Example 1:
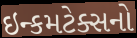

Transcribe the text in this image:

ઇન્કમટેક્સનો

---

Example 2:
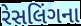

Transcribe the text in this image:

રેસલિંગના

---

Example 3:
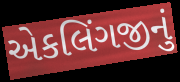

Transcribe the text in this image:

એકલિંગજીનું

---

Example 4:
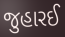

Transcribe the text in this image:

જુહારઈ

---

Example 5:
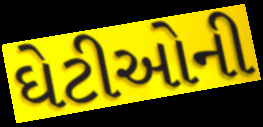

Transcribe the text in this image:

ઘેટીઓની